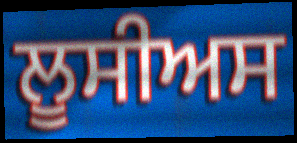
ਲੂਸੀਅਸ